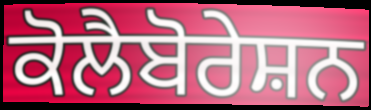
ਕੋਲੈਬੋਰੇਸ਼ਨ